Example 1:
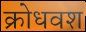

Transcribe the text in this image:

क्रोधवश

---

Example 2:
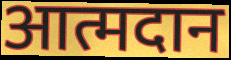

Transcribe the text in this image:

आत्मदान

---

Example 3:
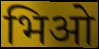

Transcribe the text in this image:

भिओ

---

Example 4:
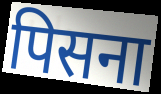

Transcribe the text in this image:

पिसना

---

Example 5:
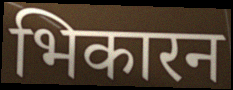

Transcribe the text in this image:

भिकारन